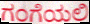
ಗಂಗೆಯಲಿ